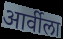
आर्वीला